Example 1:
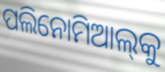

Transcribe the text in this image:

ପଲିନୋମିଆଲ୍‌କୁ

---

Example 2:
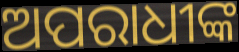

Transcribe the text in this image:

ଅପରାଧୀଙ୍କ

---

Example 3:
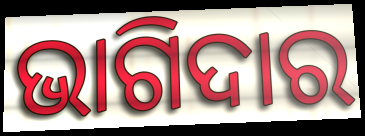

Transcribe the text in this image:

ଭାଗିଦାର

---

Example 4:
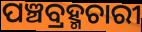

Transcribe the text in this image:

ପଞ୍ଚବ୍ରହ୍ମଚାରୀ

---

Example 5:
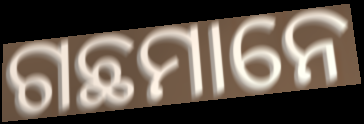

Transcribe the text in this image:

ଗଛମାନେ